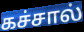
கச்சால்